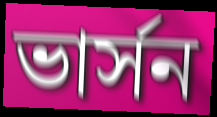
ভার্সন